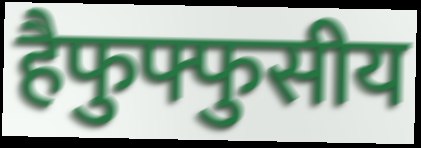
हैफुफ्फुसीय